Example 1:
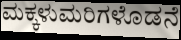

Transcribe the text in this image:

ಮಕ್ಕಳುಮರಿಗಳೊಡನೆ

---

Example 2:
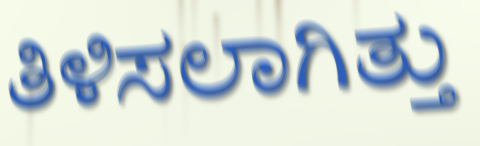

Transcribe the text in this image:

ತಿಳಿಸಲಾಗಿತ್ತು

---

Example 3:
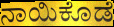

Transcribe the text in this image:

ನಾಯಿಕೊಡೆ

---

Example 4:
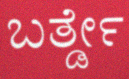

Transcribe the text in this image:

ಬರ್ತ್ಡೇ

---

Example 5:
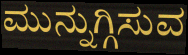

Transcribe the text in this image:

ಮುನ್ನುಗ್ಗಿಸುವ